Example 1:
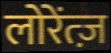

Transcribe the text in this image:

लोरेंत्ज़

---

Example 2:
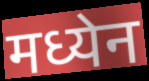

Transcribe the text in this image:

मध्येन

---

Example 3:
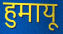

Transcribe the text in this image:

हुमायू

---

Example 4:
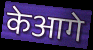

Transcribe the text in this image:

केआगे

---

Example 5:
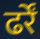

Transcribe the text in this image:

ढर्रें